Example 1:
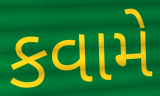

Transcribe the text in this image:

કવામે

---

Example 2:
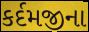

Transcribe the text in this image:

કર્દમજીના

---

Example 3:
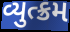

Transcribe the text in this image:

વ્યુત્ક્રમ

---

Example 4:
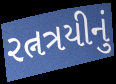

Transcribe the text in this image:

રત્નત્રયીનું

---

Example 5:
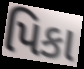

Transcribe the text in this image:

પિકા